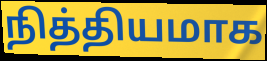
நித்தியமாக